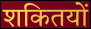
शकितयों